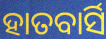
ହାତବାର୍ସି